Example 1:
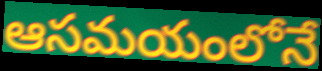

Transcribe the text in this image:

ఆసమయంలోనే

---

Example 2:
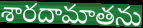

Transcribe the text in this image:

శారదామాతను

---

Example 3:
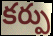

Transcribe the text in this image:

కర్పు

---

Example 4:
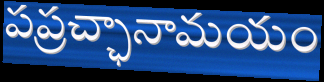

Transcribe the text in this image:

పప్రచ్ఛానామయం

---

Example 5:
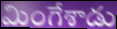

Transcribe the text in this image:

మింగేశాడు